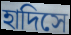
হাদিসে